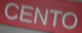
CENTO